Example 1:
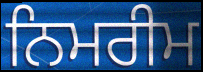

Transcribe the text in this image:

ਨਿਮਰੀਮ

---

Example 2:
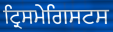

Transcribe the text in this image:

ਟ੍ਰਿਸਮੇਗਿਸਟਸ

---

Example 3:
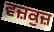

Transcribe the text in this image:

ਵਜ਼ਕੁਜ਼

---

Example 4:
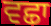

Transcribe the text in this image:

ਵਛਾ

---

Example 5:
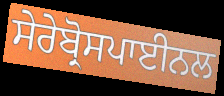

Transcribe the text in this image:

ਸੇਰੇਬ੍ਰੋਸਪਾਈਨਲ